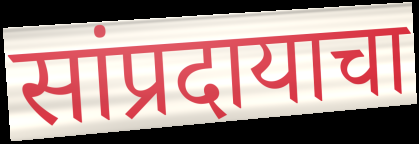
सांप्रदायाचा